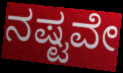
ನಷ್ಟವೇ